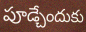
పూడ్చేందుకు